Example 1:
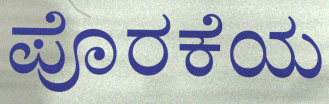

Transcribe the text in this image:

ಪೊರಕೆಯ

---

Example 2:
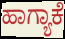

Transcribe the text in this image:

ಹಾಗ್ಯಾಕೆ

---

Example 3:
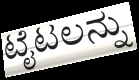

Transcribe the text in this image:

ಟೈಟಲನ್ನು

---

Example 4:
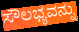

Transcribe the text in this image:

ಸೌಲಭ್ಯವನ್ನು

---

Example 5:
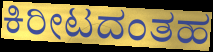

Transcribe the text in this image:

ಕಿರೀಟದಂತಹ